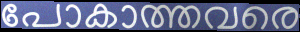
പോകാത്തവരെ